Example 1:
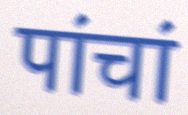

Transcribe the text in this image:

पांचां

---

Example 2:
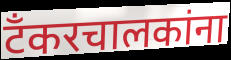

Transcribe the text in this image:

टँकरचालकांना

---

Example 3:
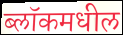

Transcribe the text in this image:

ब्लॉकमधील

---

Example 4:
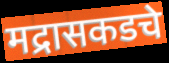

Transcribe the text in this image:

मद्रासकडचे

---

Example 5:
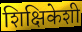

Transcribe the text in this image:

शिक्षिकेशी